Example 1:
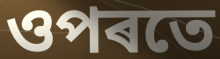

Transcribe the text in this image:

ওপৰতে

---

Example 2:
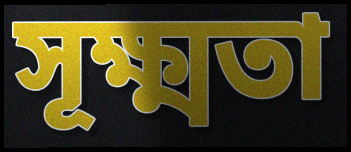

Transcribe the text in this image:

সূক্ষ্মতা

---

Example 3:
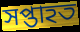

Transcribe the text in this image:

সপ্তাহত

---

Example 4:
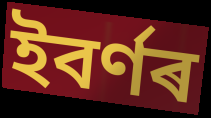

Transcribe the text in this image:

ইবৰ্ণৰ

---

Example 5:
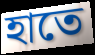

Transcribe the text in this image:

হাতে